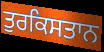
ਤੁਰਕਿਸਤਾਨ